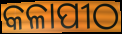
କଳାପୀଠ